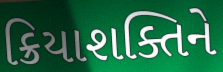
ક્રિયાશક્તિને